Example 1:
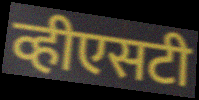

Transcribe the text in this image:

व्हीएसटी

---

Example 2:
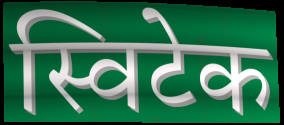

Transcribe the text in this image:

स्विटेक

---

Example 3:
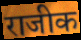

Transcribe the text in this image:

राजीक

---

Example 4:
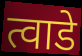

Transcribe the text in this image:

त्वाडे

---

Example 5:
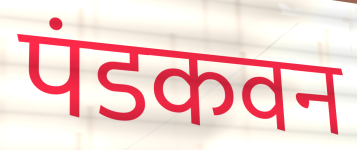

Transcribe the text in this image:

पंडकवन